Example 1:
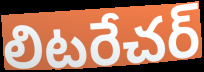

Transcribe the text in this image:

లిటరేచర్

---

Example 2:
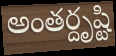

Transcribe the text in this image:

అంతర్దృష్టి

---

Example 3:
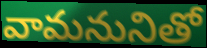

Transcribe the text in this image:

వామనునితో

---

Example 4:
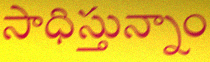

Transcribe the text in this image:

సాధిస్తున్నాం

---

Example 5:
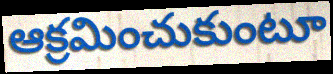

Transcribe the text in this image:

ఆక్రమించుకుంటూ